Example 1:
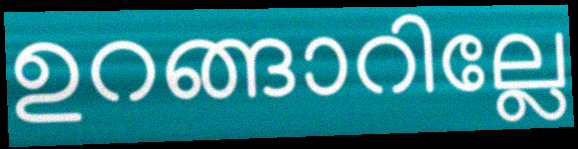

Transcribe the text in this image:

ഉറങ്ങാറില്ലേ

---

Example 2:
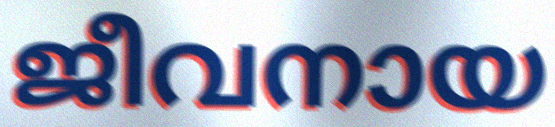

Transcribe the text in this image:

ജീവനായ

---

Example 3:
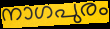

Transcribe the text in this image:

നാഗപുരം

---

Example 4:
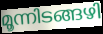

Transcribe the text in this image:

മൂന്നിടങ്ങഴി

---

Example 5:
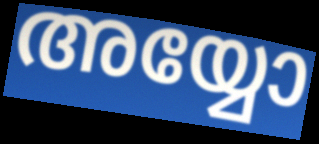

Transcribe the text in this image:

അയ്യോ